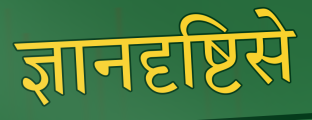
ज्ञानदृष्टिसे